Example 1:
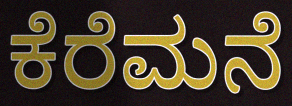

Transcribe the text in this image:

ಕೆರೆಮನೆ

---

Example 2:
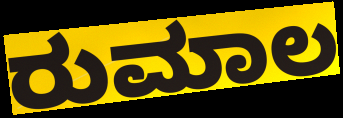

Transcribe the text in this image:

ರುಮಾಲ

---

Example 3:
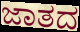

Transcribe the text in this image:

ಜಾತದ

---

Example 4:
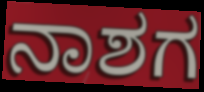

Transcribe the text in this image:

ನಾಶಗ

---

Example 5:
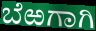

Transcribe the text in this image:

ಬೆಱಗಾಗಿ